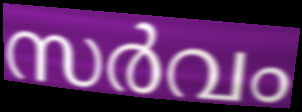
സർവം